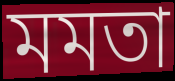
মমতা